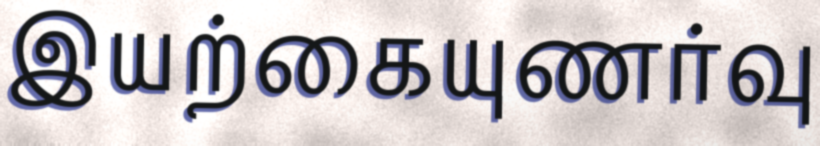
இயற்கையுணர்வு